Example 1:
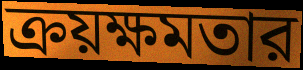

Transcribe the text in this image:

ক্রয়ক্ষমতার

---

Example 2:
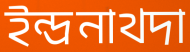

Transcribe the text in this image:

ইন্দ্রনাথদা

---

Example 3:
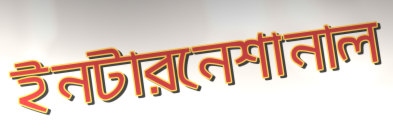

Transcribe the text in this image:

ইনটারনেশানাল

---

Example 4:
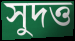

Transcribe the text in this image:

সুদত্ত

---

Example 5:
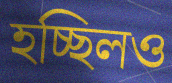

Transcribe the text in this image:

হচ্ছিলও